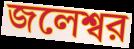
জলেশ্বর